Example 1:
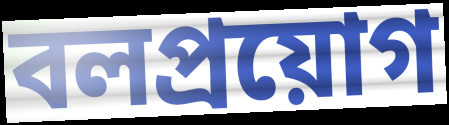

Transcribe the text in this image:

বলপ্ৰয়োগ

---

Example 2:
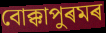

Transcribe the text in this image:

বোক্কাপুৰমৰ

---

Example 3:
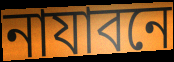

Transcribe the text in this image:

নাযাবনে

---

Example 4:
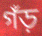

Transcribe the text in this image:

গঁড়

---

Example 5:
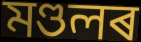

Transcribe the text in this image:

মণ্ডলৰ